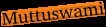
Muttuswami